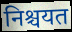
निश्चयत